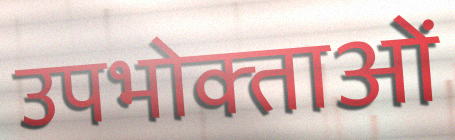
उपभोक्‍ताओं